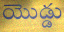
యొడ్డు